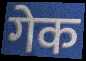
गेक